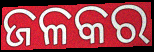
ଜଳକର